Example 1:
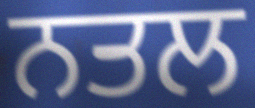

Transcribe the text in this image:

ਨਤਲ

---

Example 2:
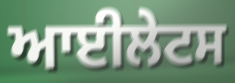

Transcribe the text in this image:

ਆਈਲੇਟਸ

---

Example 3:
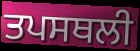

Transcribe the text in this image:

ਤਪਸਥਲੀ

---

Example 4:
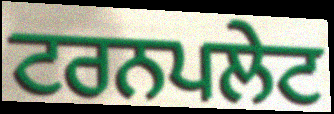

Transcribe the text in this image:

ਟਰਨਪਲੇਟ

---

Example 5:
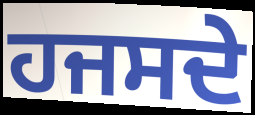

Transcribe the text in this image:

ਹਜਸਦੇ